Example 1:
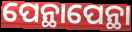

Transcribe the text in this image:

ପେନ୍ଥାପେନ୍ଥା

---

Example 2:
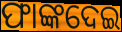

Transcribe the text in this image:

ଫାଙ୍କଦେଇ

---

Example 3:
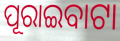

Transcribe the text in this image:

ପୂରାଇବାଟା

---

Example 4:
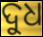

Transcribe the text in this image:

ଦୁଧ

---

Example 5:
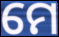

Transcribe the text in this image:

ମେ